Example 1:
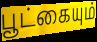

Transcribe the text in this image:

பூட்கையும்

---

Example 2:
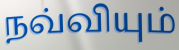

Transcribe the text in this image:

நவ்வியும்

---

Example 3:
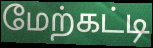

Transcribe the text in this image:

மேற்கட்டி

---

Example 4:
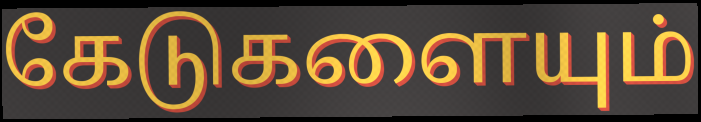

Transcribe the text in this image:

கேடுகளையும்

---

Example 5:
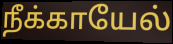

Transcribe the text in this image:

நீக்காயேல்